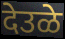
देउळे